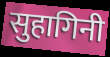
सुहागिनी